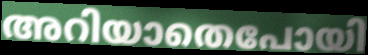
അറിയാതെപോയി